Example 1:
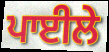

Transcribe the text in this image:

ਪਾਈਲੇ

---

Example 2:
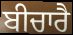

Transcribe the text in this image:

ਬੀਚਾਰੈ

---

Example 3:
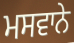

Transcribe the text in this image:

ਮਸਵਾਨੇ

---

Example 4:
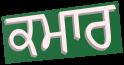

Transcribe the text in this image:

ਕਮਾਰ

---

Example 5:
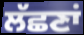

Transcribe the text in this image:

ਲੱਛਣਾਂ